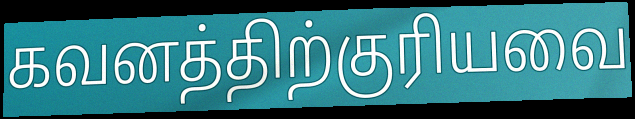
கவனத்திற்குரியவை